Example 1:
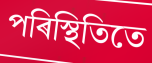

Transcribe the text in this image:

পৰিস্থিতিতে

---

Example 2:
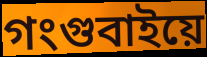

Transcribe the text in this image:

গংগুবাইয়ে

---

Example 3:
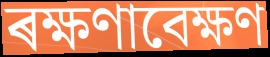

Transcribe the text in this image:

ৰক্ষণাবেক্ষণ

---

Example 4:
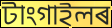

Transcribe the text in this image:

টাংগাইলৰ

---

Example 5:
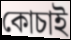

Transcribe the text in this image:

কোচাই